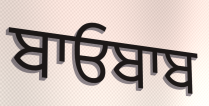
ਬਾਓਬਾਬ